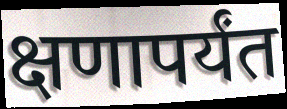
क्षणापर्यंत